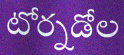
టోర్నడోల